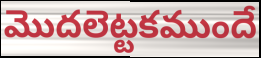
మొదలెట్టకముందే